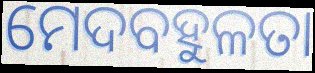
ମେଦବହୁଳତା